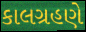
કાલગ્રહણે